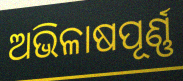
ଅଭିଳାଷପୂର୍ଣ୍ଣ